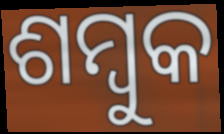
ଶମ୍ବୁକ